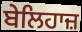
ਬੇਲਿਹਾਜ਼